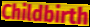
Childbirth